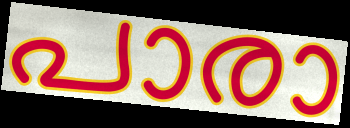
പാരാ